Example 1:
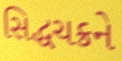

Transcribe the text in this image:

સિદ્ધચક્રને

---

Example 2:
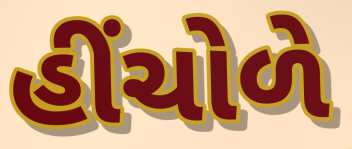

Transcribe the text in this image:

હીંચોળે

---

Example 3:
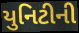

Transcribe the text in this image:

યુનિટીની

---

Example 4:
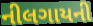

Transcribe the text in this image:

નીલગાયની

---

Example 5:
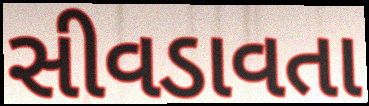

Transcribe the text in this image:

સીવડાવતા